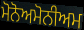
ਮੋਨੋਅਮੋਨੀਅਮ